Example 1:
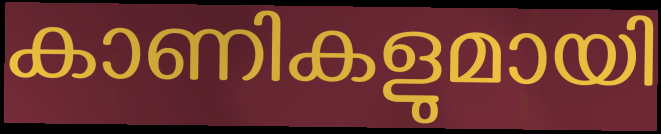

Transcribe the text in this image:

കാണികളുമായി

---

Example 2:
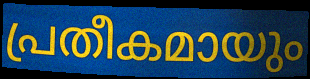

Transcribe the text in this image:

പ്രതീകമായും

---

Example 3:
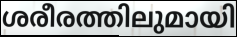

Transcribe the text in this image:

ശരീരത്തിലുമായി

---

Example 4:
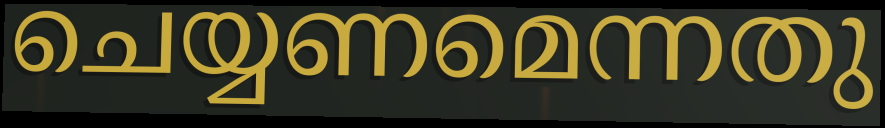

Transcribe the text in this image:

ചെയ്യണമെന്നതു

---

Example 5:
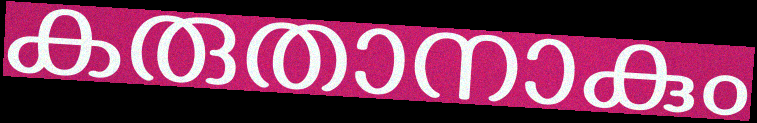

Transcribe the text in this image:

കരുതാനാകും